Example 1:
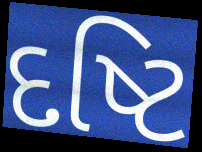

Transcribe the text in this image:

દષ્ટિ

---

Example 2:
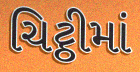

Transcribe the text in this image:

ચિટ્ઠીમાં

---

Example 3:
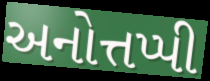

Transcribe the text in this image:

અનોત્તપ્પી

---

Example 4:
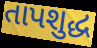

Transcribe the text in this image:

તાપશુદ્ધ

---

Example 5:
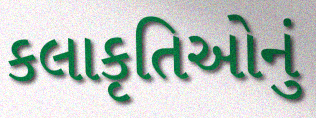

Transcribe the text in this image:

કલાકૃતિઓનું